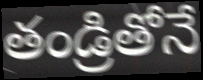
తండ్రితోనే